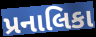
પ્રનાલિકા